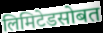
लिमिटेडसोबत